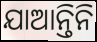
ଯାଆନ୍ତିନି